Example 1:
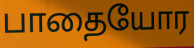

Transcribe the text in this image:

பாதையோர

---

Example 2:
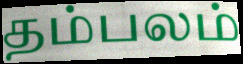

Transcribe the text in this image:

தம்பலம்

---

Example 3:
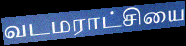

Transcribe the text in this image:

வடமராட்சியை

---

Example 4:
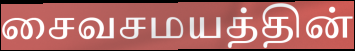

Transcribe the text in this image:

சைவசமயத்தின்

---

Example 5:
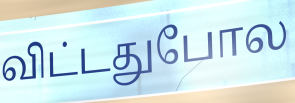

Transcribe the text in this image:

விட்டதுபோல